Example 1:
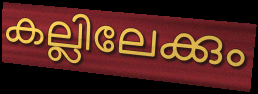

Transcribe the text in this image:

കല്ലിലേക്കും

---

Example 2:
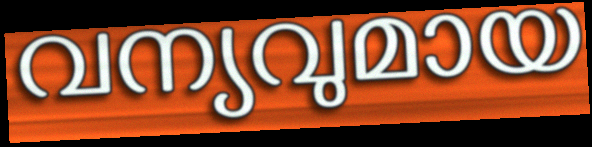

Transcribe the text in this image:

വന്യവുമായ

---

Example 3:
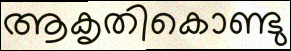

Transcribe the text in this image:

ആകൃതികൊണ്ടു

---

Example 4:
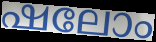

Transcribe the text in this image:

ഷലോം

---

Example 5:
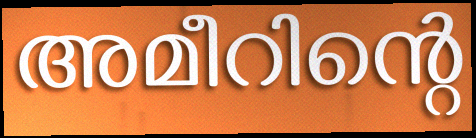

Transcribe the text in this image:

അമീറിന്റെ